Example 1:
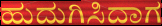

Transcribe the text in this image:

ಹುದುಗಿಸಿದಾಗ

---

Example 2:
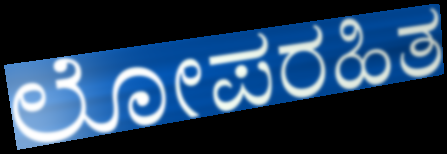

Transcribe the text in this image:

ಲೋಪರಹಿತ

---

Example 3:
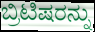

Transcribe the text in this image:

ಬ್ರಿಟಿಷರನ್ನು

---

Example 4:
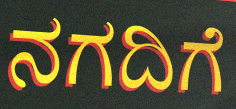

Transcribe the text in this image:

ನಗದಿಗೆ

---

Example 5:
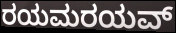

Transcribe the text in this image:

ರಯಮರಯವ್